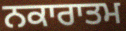
ਨਕਾਰਾਤਮ